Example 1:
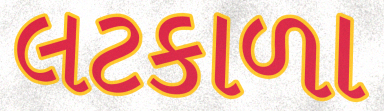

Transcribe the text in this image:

લટકાળા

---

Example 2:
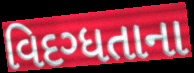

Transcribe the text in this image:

વિદગ્ધતાના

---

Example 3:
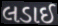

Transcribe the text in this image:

લડાઈ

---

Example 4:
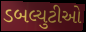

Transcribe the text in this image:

ડબલ્યુટીઓ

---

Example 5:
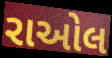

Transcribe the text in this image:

રાઓલ